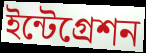
ইন্টেগ্রেশন